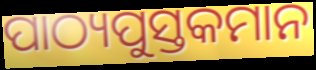
ପାଠ୍ୟପୁସ୍ତକମାନ